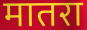
मातरा